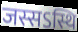
जस्सऽस्थि